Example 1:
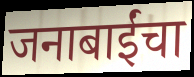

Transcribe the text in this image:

जनाबाईंचा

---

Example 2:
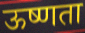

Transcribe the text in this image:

ऊष्णता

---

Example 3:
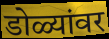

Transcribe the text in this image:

डोळ्यांवर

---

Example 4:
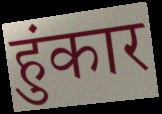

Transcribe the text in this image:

हुंकार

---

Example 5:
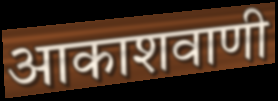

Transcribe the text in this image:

आकाशवाणी